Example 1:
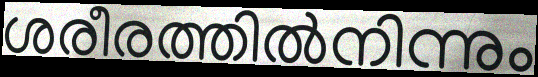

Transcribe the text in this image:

ശരീരത്തിൽനിന്നും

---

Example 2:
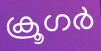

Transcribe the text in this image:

ക്രൂഗർ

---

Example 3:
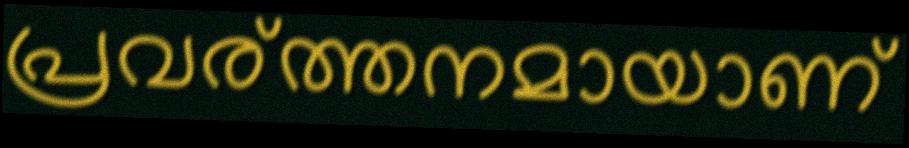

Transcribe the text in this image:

പ്രവര്ത്തനമായാണ്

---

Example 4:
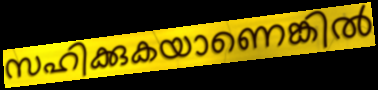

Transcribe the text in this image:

സഹിക്കുകയാണെങ്കിൽ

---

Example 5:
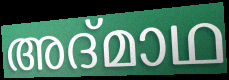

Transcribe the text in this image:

അദ്മാഥ